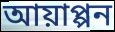
আয়াপ্পন